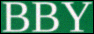
BBY